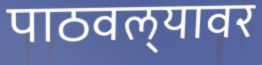
पाठवल्यावर